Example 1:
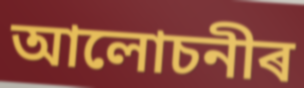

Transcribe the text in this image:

আলোচনীৰ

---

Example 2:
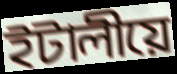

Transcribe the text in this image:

ইটালীয়ে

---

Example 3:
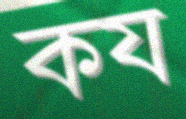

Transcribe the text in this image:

কয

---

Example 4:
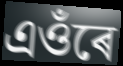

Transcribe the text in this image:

এওঁৰে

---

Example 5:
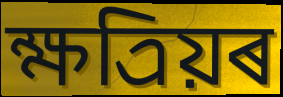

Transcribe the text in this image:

ক্ষত্ৰিয়ৰ